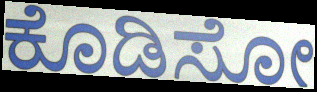
ಕೊಡಿಸೋ